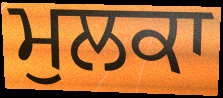
ਮੁਲਕਾ